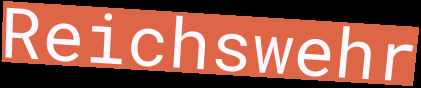
Reichswehr